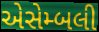
એસેમ્બલી